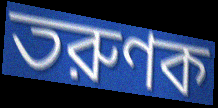
তৰুণক